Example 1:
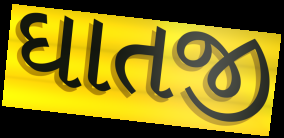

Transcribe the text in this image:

ઘાતજી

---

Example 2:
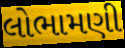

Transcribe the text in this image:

લોભામણી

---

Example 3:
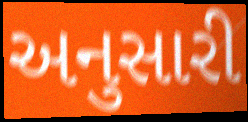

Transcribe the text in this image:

અનુસારી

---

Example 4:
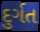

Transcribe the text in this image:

દુર્ગત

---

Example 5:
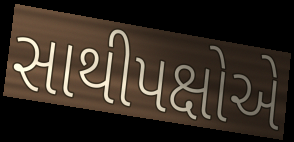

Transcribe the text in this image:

સાથીપક્ષોએ